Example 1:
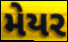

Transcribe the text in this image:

મેયર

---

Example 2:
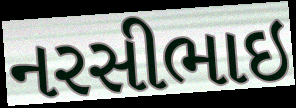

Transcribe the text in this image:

નરસીભાઇ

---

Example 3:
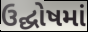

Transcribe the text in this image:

ઉદ્ઘોષમાં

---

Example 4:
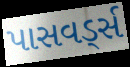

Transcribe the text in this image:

પાસવર્ડ્સ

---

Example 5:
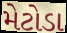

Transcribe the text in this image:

મેટોડા